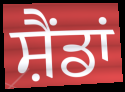
ਸ਼ੈਂਡਾਂ